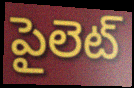
పైలెట్